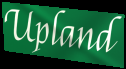
Upland